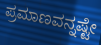
ಪ್ರಮಾಣವನ್ನಷ್ಟೇ